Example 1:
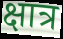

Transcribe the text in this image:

क्षात्र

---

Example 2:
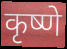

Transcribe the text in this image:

कृष्णे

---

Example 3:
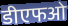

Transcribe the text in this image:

डीएफओ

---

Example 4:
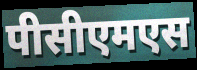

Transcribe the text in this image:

पीसीएमएस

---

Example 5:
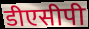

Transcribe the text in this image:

डीएसीपी